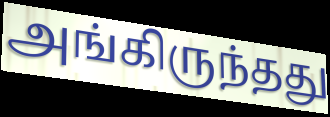
அங்கிருந்தது